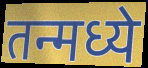
तन्मध्ये